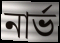
নার্ভ